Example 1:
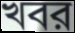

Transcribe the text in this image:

খবর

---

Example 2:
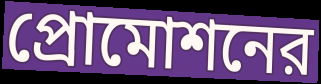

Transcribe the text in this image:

প্রোমোশনের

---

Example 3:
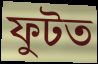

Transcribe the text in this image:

ফুটত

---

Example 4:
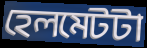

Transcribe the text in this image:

হেলমেটটা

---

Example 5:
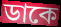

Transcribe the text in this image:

ডাকে